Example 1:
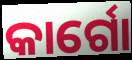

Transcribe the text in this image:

କାର୍ଗୋ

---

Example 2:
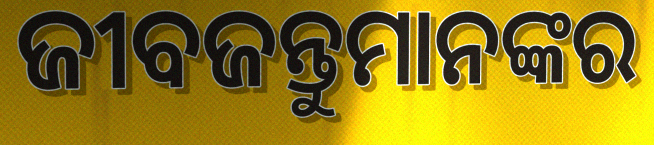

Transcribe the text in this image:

ଜୀବଜନ୍ତୁମାନଙ୍କର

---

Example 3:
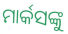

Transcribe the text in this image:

ମାର୍କସଙ୍କୁ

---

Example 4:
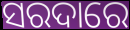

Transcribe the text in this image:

ସରଦାରେ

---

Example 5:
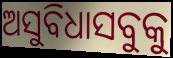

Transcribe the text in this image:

ଅସୁବିଧାସବୁକୁ